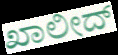
ಖಾಲೀದ್